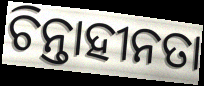
ଚିନ୍ତାହୀନତା